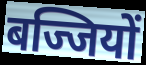
बज्जियों